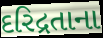
દરિદ્રતાના